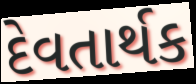
દેવતાર્થક